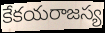
కేకయరాజస్య